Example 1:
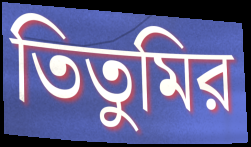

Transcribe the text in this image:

তিতুমির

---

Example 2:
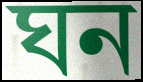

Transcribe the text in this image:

ঘন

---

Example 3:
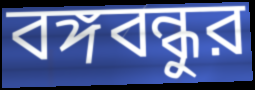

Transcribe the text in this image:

বঙ্গবন্ধুর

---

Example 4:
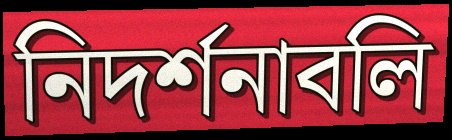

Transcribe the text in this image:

নিদর্শনাবলি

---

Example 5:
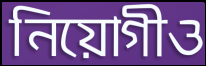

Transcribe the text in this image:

নিয়োগীও